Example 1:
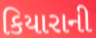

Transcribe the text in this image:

કિયારાની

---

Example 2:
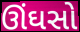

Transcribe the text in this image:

ઊંઘસો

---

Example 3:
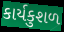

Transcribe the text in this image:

કાર્યકુશળ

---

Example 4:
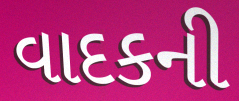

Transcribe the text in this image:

વાદકની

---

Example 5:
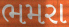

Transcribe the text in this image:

ભમરા